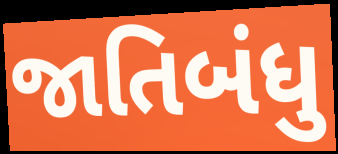
જાતિબંધુ